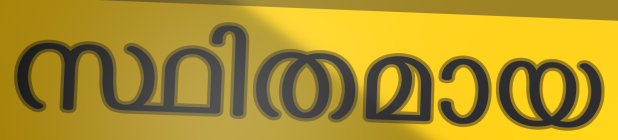
സ്ഥിതമായ